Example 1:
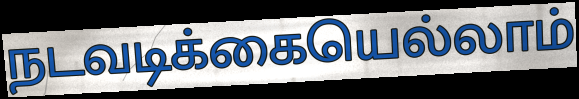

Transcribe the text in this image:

நடவடிக்கையெல்லாம்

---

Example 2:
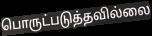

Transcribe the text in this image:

பொருட்படுத்தவில்லை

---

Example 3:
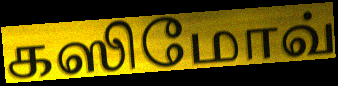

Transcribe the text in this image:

கஸிமோவ்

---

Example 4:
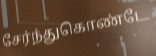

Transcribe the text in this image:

சேர்ந்துகொண்டே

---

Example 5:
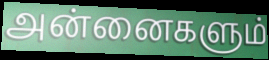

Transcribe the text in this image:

அன்னைகளும்